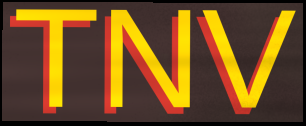
TNV